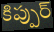
కిప్పుర్